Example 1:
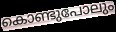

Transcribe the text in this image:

കൊണ്ടുപോലും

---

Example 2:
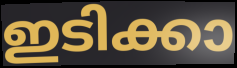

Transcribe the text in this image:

ഇടിക്കാ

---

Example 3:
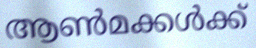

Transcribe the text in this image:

ആൺമക്കൾക്ക്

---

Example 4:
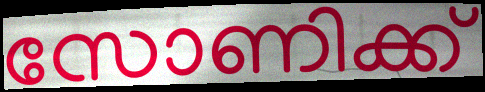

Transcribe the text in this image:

സോണിക്ക്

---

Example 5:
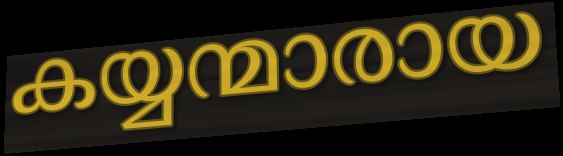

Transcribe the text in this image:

കയ്യന്മാരായ